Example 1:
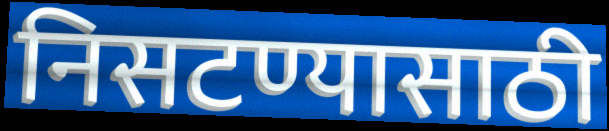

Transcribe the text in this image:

निसटण्यासाठी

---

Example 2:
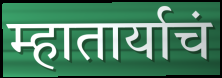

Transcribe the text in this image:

म्हातार्याचं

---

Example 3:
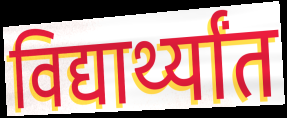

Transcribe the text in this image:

विद्यार्थ्यांत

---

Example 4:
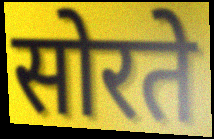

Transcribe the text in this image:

सोरते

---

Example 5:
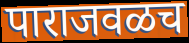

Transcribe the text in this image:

पाराजवळच